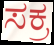
ಸಕ್ರ